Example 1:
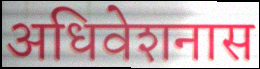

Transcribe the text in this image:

अधिवेशनास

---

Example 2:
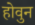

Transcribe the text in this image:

होवुन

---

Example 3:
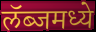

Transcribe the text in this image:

लॅब्जमध्ये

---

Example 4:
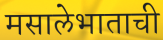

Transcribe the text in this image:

मसालेभाताची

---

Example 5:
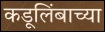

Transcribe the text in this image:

कडूलिंबाच्या